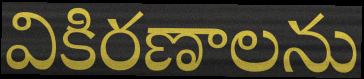
వికిరణాలను